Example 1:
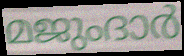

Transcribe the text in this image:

മജുംദാർ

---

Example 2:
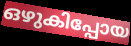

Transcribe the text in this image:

ഒഴുകിപ്പോയ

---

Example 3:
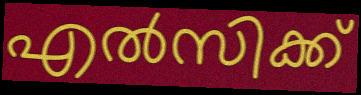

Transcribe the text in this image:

എൽസിക്ക്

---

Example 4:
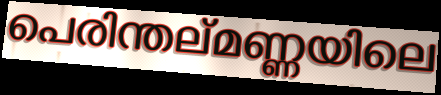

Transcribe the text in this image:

പെരിന്തല്മണ്ണയിലെ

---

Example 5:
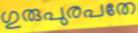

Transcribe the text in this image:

ഗുരുപുരപതേ